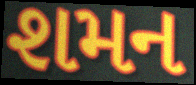
શમન